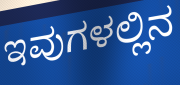
ಇವುಗಳಲ್ಲಿನ